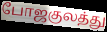
போஜகுலத்து